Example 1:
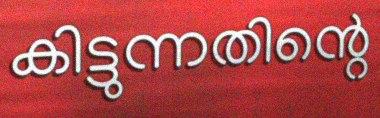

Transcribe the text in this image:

കിട്ടുന്നതിന്റെ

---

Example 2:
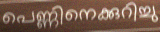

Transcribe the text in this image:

പെണ്ണിനെക്കുറിച്ചു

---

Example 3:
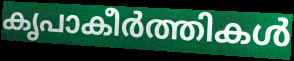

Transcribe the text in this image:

കൃപാകീർത്തികൾ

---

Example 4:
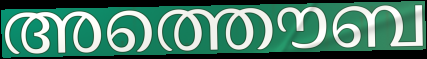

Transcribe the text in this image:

അത്തൌബ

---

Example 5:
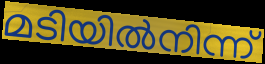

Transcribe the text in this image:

മടിയിൽനിന്ന്